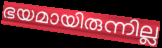
ഭയമായിരുന്നില്ല